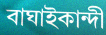
বাঘাইকান্দী